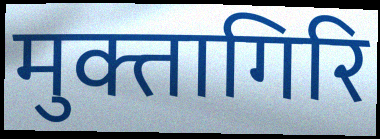
मुक्तागिरि